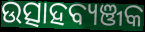
ଉତ୍ସାହବ୍ୟଞ୍ଜକ